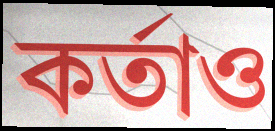
কর্তাও